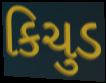
કિચુડ